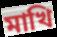
মাখি